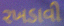
રખડાવી